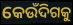
କେଉଁଦିଗକୁ